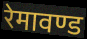
रेमावण्ड